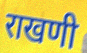
राखणी